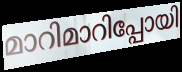
മാറിമാറിപ്പോയി